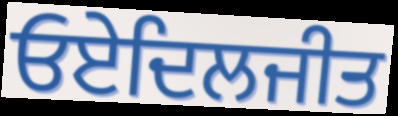
ਓਏਦਿਲਜੀਤ